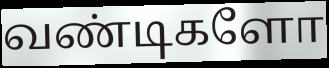
வண்டிகளோ